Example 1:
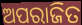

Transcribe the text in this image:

ଅପରାଜିତ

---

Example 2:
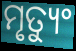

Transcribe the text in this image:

ମୃତ୍ୟୁଂ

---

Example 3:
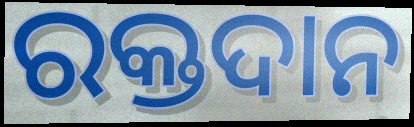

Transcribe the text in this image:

ରକ୍ତଦାନ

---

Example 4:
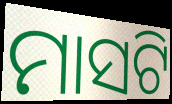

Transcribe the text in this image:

ମାସଟି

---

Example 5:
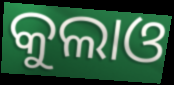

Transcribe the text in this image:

କୁଲାଓ